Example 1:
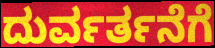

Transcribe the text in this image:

ದುರ್ವರ್ತನೆಗೆ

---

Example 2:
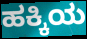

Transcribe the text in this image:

ಹಕ್ಕಿಯ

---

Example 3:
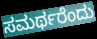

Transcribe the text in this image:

ಸಮರ್ಥರೆಂದು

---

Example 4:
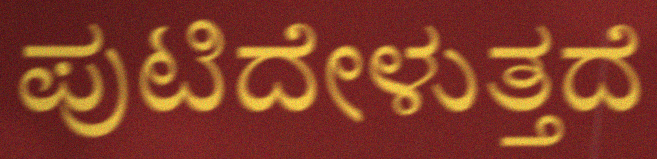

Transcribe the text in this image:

ಪುಟಿದೇಳುತ್ತದೆ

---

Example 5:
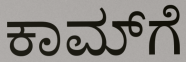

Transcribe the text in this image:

ಕಾಮ್‌ಗೆ